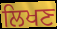
ਲਿਖਣ